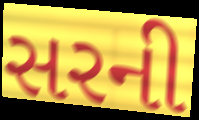
સરની